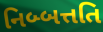
નિબ્બત્તતિ